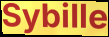
Sybille